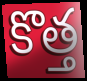
కొత్త